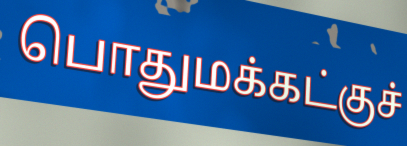
பொதுமக்கட்குச்